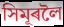
সিমূৰলৈ